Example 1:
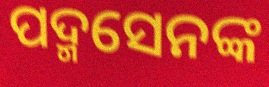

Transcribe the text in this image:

ପଦ୍ମସେନଙ୍କ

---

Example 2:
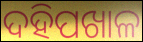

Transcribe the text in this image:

ଦହିପଖାଳ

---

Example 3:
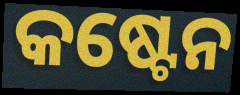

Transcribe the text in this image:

କଷ୍ଟେନ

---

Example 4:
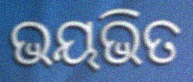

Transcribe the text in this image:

ଭୟଭିତ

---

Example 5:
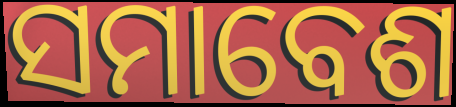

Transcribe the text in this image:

ସମାବେଶ